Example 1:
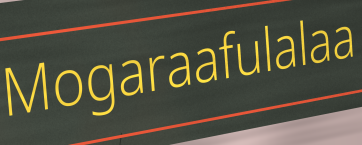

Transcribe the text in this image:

Mogaraafulalaa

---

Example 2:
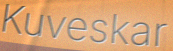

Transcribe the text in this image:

Kuveskar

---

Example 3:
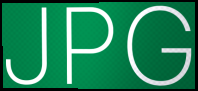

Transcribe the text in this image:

JPG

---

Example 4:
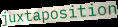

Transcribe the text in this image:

juxtaposition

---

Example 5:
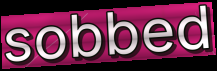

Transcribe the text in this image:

sobbed